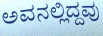
ಅವನಲ್ಲಿದ್ದವು